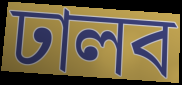
ঢালব